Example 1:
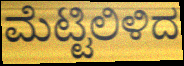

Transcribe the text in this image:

ಮೆಟ್ಟಿಲಿಳಿದ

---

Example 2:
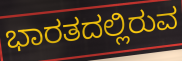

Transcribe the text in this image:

ಭಾರತದಲ್ಲಿರುವ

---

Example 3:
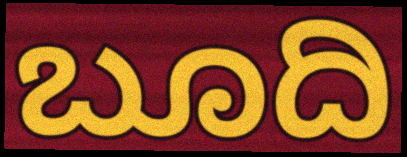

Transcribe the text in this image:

ಬೂದಿ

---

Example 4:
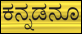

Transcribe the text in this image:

ಕನ್ನಡನೂ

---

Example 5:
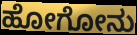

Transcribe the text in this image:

ಹೋಗೋನು